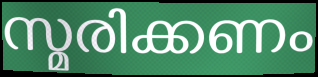
സ്മരിക്കണം